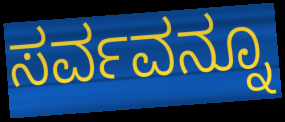
ಸರ್ವವನ್ನೂ